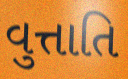
વુત્તાતિ